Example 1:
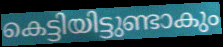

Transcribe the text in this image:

കെട്ടിയിട്ടുണ്ടാകും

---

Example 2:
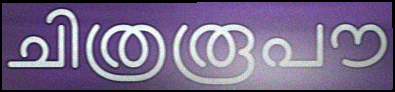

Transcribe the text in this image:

ചിത്രരൂപൗ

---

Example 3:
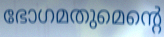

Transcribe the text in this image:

ഭോഗമതുമെന്റെ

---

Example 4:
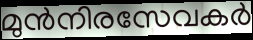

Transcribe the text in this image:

മുൻനിരസേവകർ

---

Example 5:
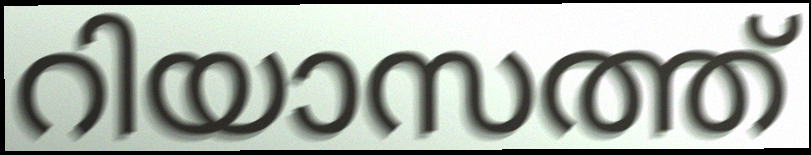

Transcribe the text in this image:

റിയാസത്ത്